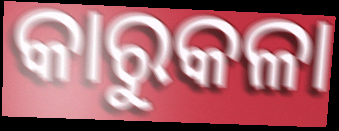
କାରୁକଳା